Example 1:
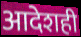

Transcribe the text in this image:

आदेशही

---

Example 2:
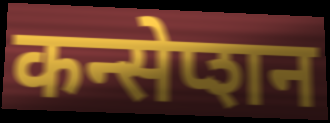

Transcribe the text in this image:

कन्सेप्शन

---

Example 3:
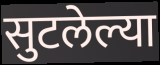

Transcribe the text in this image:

सुटलेल्या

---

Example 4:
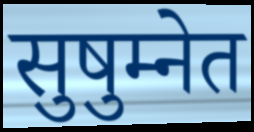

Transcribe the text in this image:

सुषुम्नेत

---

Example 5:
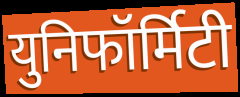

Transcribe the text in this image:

युनिफॉर्मिटी